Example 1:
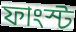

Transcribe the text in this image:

ফাংস্ট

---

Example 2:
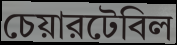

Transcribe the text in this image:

চেয়ারটেবিল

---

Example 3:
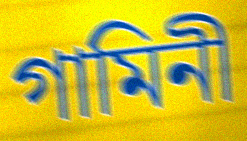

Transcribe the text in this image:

গামিনী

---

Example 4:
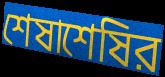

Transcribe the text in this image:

শেষাশেষির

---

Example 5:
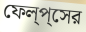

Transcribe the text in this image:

ফেল্‌প্‌সের